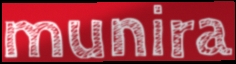
munira